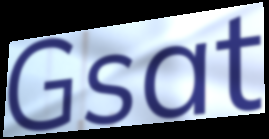
Gsat